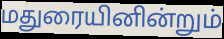
மதுரையினின்றும்